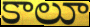
కాలూ